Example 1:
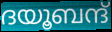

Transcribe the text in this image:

ദയൂബന്ദ്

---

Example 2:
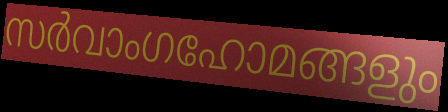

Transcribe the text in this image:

സർവാംഗഹോമങ്ങളും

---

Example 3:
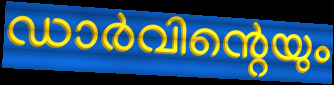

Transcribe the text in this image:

ഡാർവിന്റെയും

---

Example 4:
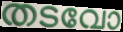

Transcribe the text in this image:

തടവോ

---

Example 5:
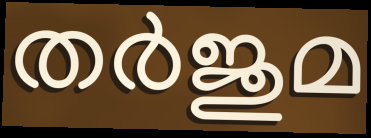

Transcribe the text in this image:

തർജുമ